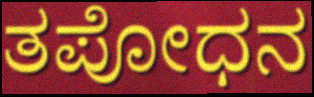
ತಪೋಧನ